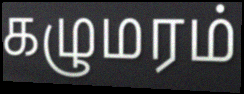
கழுமரம்